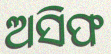
ଅସିଫ